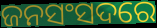
ଜନସଂସଦରେ